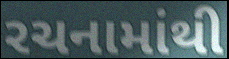
રચનામાંથી